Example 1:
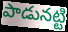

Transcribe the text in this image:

పాడునట్టి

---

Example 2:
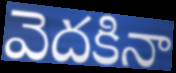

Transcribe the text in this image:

వెదకినా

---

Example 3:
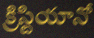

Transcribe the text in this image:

క్రిస్టియానో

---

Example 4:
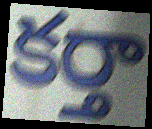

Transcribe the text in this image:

కర్తా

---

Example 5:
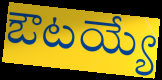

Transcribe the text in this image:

ఔటయ్యే